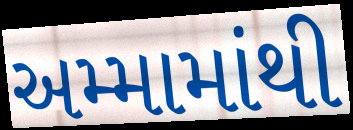
અમ્મામાંથી